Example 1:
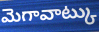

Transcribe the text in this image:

మెగావాట్కు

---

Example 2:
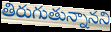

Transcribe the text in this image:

తిరుగుతున్నానని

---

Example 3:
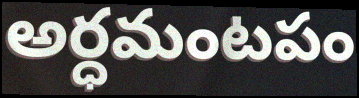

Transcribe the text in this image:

అర్ధమంటపం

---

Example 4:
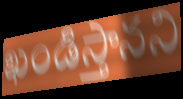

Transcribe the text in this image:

ఖండిస్తానని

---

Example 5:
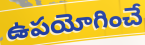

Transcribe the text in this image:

ఉపయోగించే